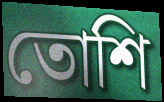
তোশি